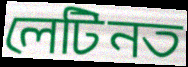
লেটিনত